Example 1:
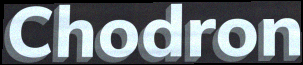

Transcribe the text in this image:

Chodron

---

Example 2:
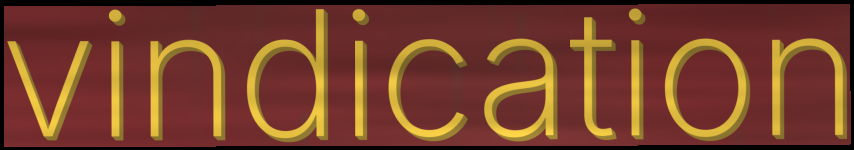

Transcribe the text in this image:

vindication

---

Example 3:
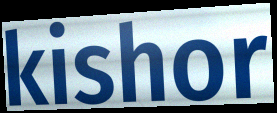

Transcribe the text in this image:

kishor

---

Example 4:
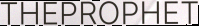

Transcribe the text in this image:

THEPROPHET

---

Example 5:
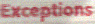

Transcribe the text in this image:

Exceptions